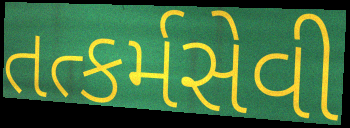
તત્કર્મસેવી